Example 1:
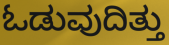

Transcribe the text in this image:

ಓಡುವುದಿತ್ತು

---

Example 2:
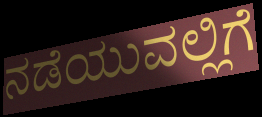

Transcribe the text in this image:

ನಡೆಯುವಲ್ಲಿಗೆ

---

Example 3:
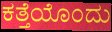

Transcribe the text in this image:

ಕತ್ತೆಯೊಂದು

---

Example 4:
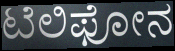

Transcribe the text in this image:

ಟೆಲಿಫೋನ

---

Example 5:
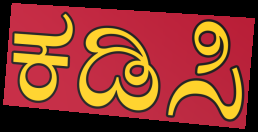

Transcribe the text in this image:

ಕಡಿಸಿ